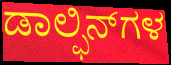
ಡಾಲ್ಫಿನ್‌ಗಳ